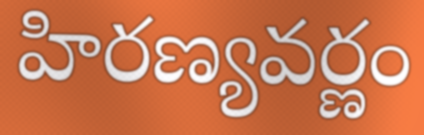
హిరణ్యవర్ణం